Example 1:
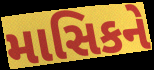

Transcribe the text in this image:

માસિકને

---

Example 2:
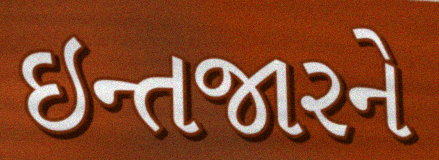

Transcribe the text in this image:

ઇન્તજારને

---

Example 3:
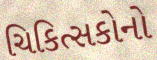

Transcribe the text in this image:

ચિકિત્સકોનો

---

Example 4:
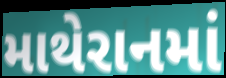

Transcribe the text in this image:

માથેરાનમાં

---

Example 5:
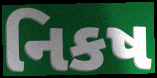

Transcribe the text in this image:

નિકષ